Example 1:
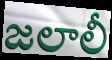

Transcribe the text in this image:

జలాలీ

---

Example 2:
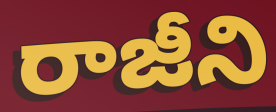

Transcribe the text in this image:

రాజీని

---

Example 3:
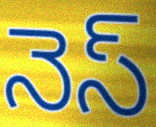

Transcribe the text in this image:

నెస్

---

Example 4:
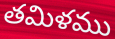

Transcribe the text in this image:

తమిళము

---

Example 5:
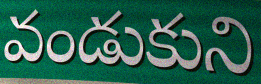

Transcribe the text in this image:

వండుకుని